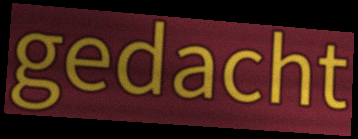
gedacht